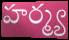
హర్మ్య